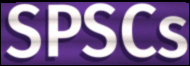
SPSCs